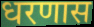
धरणास